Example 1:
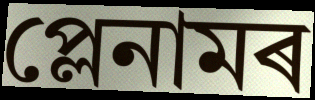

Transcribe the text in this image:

প্লেনামৰ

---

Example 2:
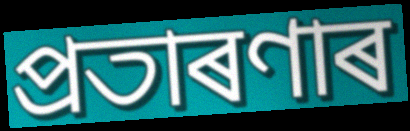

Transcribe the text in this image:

প্ৰতাৰণাৰ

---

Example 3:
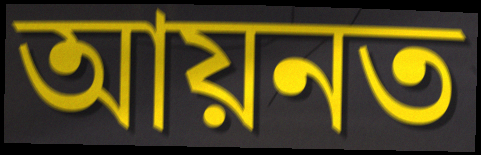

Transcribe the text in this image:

আয়নত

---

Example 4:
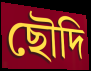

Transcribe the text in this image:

ছৌদি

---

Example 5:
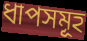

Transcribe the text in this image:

ধাপসমূহ